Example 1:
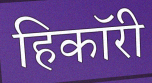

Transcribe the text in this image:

हिकॉरी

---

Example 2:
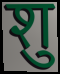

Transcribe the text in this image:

शु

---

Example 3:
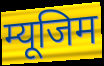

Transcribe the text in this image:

म्यूजिम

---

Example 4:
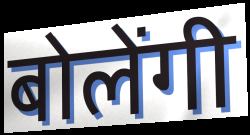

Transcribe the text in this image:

बोलेंगी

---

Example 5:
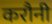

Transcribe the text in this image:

करौनी